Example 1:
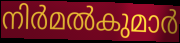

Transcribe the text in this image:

നിർമൽകുമാർ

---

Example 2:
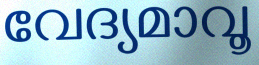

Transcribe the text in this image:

വേദ്യമാവൂ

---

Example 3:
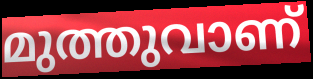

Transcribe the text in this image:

മുത്തുവാണ്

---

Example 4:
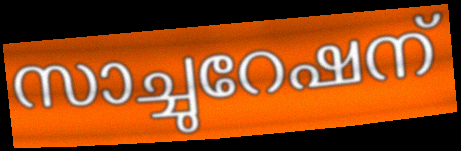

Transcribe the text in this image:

സാച്ചുറേഷന്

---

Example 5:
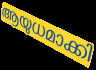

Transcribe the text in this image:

ആയുധമാക്കി